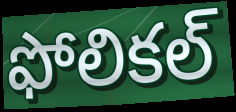
ఫోలికల్